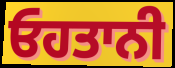
ਓਹਤਾਨੀ